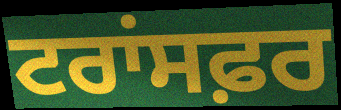
ਟਰਾਂਸਫ਼ਰ